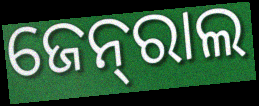
ଜେନ୍‌ରାଲ